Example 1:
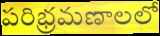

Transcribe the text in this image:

పరిభ్రమణాలలో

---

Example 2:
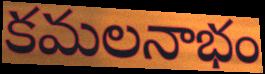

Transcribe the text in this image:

కమలనాభం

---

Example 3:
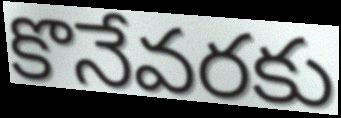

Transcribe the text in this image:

కొనేవరకు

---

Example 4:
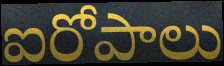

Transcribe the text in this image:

ఐరోపాలు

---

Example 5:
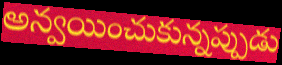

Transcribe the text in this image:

అన్వయించుకున్నప్పుడు